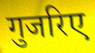
गुजरिए